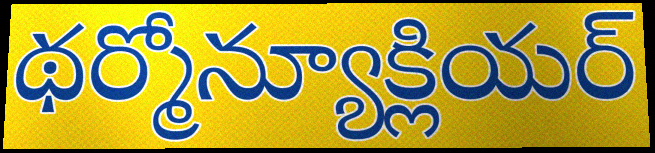
థర్మోన్యూక్లియర్